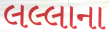
લલ્લાના